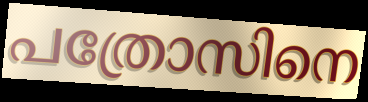
പത്രോസിനെ